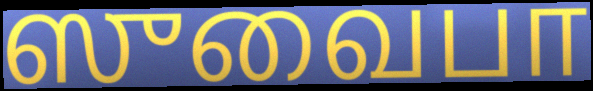
ஸுவைபா